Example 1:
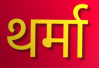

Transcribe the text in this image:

थर्मा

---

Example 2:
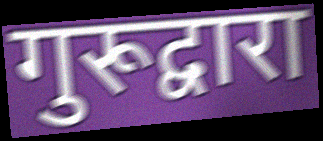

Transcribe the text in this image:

गुरूद्वारा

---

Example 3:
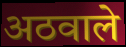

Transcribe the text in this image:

अठवाले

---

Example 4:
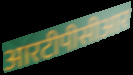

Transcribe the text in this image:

आरटीपीसीआर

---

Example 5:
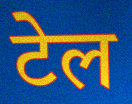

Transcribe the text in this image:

टेल